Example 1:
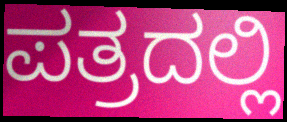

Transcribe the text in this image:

ಪತ್ರದಲ್ಲಿ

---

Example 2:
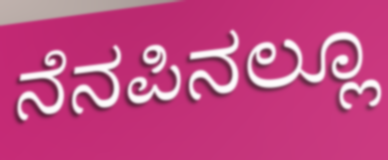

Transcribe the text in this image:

ನೆನಪಿನಲ್ಲೂ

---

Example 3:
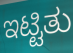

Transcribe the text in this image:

ಇಟ್ಟಿತು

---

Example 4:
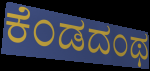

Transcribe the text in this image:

ಕೆಂಡದಂಥ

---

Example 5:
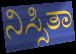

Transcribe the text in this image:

ನಿಸ್ಸಿತಾ